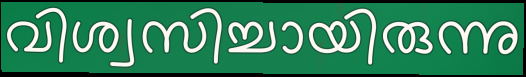
വിശ്വസിച്ചായിരുന്നു